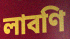
লাবণি